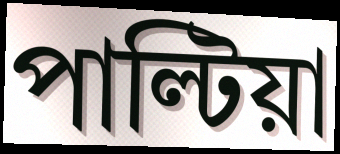
পাল্টিয়া